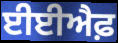
ਈਈਐਫ਼